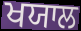
ਖਯਾਲ